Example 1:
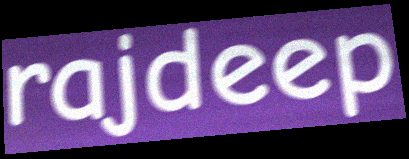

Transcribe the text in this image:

rajdeep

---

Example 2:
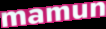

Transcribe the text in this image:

mamun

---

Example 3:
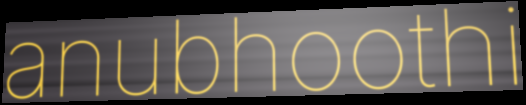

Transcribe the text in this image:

anubhoothi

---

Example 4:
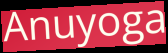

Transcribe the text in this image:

Anuyoga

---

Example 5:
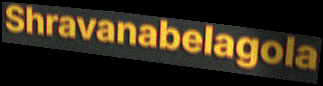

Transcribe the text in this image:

Shravanabelagola